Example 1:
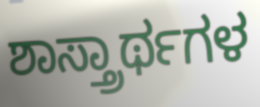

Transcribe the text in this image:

ಶಾಸ್ತ್ರಾರ್ಥಗಳ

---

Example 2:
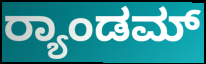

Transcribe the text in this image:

ರ್‍ಯಾಂಡಮ್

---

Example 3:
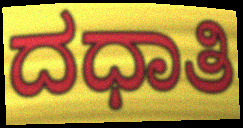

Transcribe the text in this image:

ದಧಾತಿ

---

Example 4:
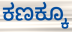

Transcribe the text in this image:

ಕಣಕ್ಕೂ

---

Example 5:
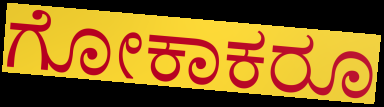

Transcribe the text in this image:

ಗೋಕಾಕರೂ